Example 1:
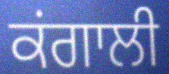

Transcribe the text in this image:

ਕਂਗਾਲੀ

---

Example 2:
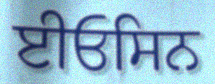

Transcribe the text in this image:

ਈਓਸਿਨ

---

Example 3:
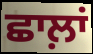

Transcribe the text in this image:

ਛਾਲ਼ਾਂ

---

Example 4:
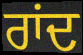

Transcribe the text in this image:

ਰਾਂਦ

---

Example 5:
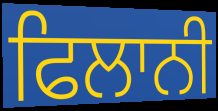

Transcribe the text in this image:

ਫਿਲਾਨੀ